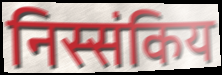
निस्संकिय